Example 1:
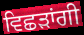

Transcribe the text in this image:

ਵਿਛੜਾਂਗੀ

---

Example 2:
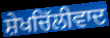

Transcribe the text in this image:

ਸ਼ੇਖਚਿੱਲੀਵਾਦ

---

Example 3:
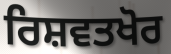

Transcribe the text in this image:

ਰਿਸ਼ਵਤਖੋਰ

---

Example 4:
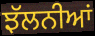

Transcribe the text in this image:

ਝੱਲਨੀਆਂ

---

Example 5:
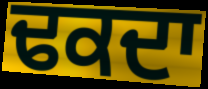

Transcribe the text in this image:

ਢਕਦਾ